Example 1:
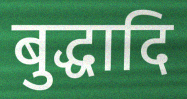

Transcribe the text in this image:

बुद्धादि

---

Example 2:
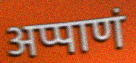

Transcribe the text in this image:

अप्पाणं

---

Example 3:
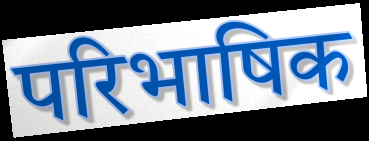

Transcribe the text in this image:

परिभाषिक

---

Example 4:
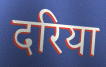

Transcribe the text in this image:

दरिया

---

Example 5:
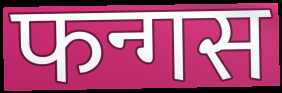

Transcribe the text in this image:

फन्गस